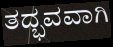
ತದ್ಭವವಾಗಿ